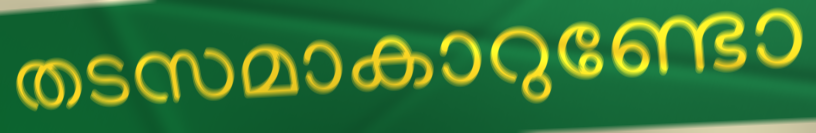
തടസമാകാറുണ്ടോ